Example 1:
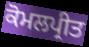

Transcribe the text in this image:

ਕੋਮਲਪ੍ਰੀਤ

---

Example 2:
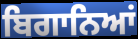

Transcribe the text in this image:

ਬਿਗਾਨਿਆਂ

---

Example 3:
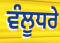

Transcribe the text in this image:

ਵੰਲੂਧਰੇ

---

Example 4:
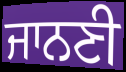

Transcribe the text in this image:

ਜਾਨਣੀ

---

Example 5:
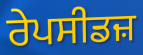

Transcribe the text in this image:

ਰੇਪਸੀਡਜ਼